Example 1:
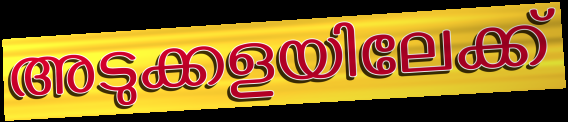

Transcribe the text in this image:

അടുക്കളയിലേക്ക്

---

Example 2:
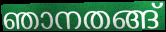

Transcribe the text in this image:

ഞാനതങ്ങ്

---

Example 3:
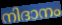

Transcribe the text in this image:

നിദാനം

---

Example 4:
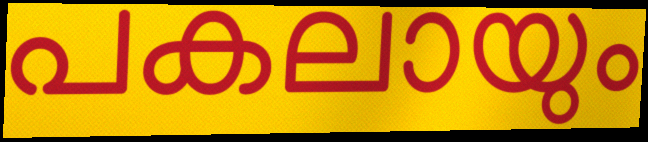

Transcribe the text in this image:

പകലായും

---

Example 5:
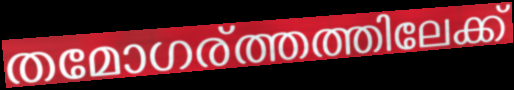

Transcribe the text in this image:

തമോഗര്ത്തത്തിലേക്ക്